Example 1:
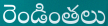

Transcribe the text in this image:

రెండింతలు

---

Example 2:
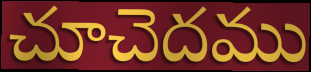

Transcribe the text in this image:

చూచెదము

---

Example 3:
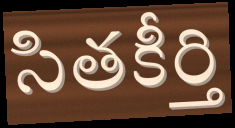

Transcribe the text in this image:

సితకీర్తి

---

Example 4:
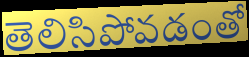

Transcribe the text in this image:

తెలిసిపోవడంతో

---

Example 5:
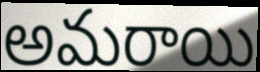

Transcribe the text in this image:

అమరాయి